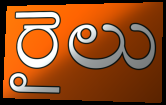
రైలు